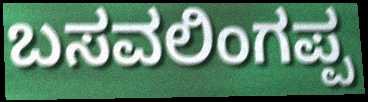
ಬಸವಲಿಂಗಪ್ಪ